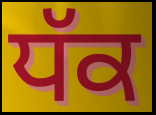
ਧੱਕ